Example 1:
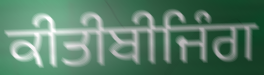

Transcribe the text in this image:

ਕੀਤੀਬੀਜਿੰਗ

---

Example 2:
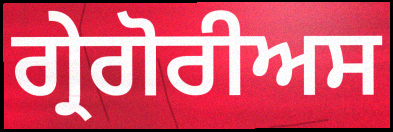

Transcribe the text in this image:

ਗ੍ਰੇਗੋਰੀਅਸ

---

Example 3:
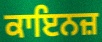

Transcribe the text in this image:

ਕਾਇਨਜ਼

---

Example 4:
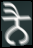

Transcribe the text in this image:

ਨੈ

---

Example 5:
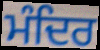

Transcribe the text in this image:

ਮੰਦਿਰ